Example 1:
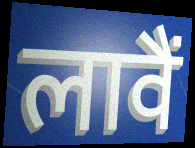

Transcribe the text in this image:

लावैं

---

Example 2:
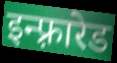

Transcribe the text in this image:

इन्फ़्रारेड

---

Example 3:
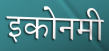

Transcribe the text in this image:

इकोनमी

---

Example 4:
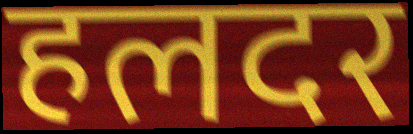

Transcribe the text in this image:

हलदर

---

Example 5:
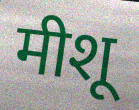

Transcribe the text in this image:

मीशू